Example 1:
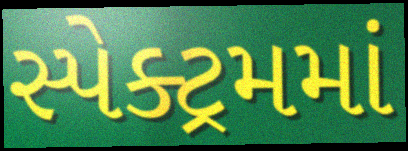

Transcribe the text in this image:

સ્પેક્ટ્રમમાં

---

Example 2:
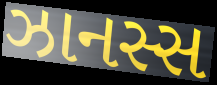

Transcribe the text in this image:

ઝાનસ્સ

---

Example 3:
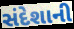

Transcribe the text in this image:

સંદેશાની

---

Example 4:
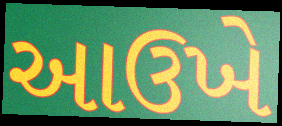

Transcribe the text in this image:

આઉખે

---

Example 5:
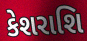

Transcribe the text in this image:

કેશરાશિ